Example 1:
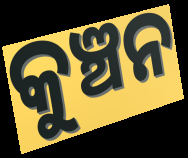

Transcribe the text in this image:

କୁଞ୍ଚନ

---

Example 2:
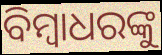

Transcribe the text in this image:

ବିମ୍ୱାଧରଙ୍କୁ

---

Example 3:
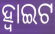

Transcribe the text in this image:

ହ୍ବାଇଟ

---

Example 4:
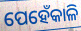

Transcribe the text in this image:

ପେହେଁକାଳି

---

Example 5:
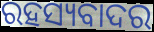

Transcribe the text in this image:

ରହସ୍ୟବାଦର